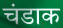
चंडाक